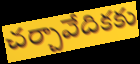
చర్చావేదికకు